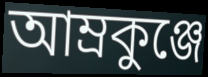
আম্রকুঞ্জে